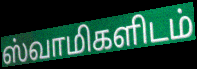
ஸ்வாமிகளிடம்